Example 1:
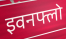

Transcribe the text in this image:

इवनफ्लो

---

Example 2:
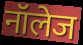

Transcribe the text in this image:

नॉलेज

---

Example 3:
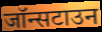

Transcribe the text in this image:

जॉन्सटाउन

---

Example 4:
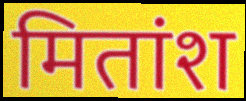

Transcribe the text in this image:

मितांश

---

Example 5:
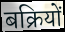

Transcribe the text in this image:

बक्रियों